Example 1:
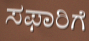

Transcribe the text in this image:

ಸಫಾರಿಗೆ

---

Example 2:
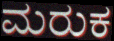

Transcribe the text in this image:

ಮರುಕ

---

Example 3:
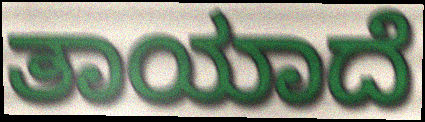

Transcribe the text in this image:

ತಾಯಾದೆ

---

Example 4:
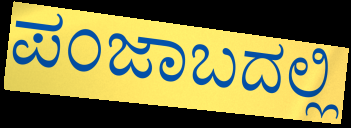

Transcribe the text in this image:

ಪಂಜಾಬದಲ್ಲಿ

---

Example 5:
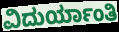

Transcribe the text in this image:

ವಿದುರ್ಯಾಂತಿ